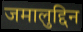
जमालुद्दिन